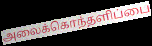
அலைக்கொந்தளிப்பை